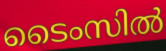
ടൈംസിൽ